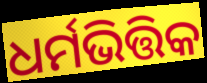
ଧର୍ମଭିତ୍ତିକ